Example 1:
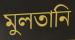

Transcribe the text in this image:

মুলতানি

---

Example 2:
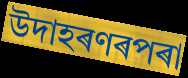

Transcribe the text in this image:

উদাহৰণৰপৰা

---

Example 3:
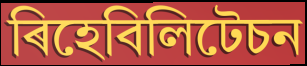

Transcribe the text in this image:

ৰিহেবিলিটেচন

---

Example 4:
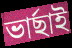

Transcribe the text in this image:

ভাৰ্ছাই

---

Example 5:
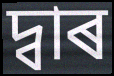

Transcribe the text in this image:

দ্বাৰ